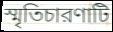
স্মৃতিচারণাটি